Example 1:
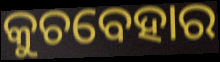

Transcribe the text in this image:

କୁଚବେହାର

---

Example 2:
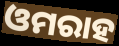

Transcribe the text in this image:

ଓମରାହ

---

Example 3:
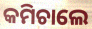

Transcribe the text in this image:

କମିଚାଲେ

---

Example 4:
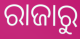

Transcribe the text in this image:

ରାଜାରୁ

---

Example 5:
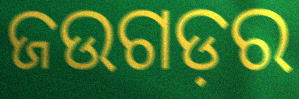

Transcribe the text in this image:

ଜଉଗଡ଼ର